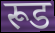
रूड